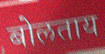
बोलताय